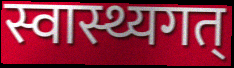
स्वास्थ्यगत्